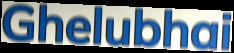
Ghelubhai